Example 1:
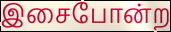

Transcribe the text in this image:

இசைபோன்ற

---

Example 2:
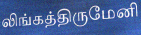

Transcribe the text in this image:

லிங்கத்திருமேனி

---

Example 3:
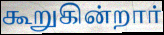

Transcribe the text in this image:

கூறுகின்றார்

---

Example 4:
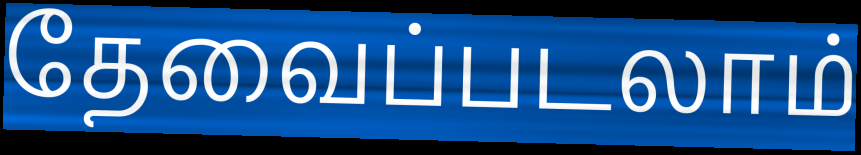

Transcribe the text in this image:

தேவைப்படலாம்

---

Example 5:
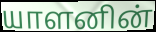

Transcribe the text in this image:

யாளனின்